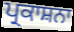
ਪ੍ਰਕਾਸ਼ਨਾ